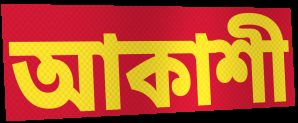
আকাশী